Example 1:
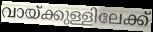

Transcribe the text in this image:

വായ്ക്കുള്ളിലേക്ക്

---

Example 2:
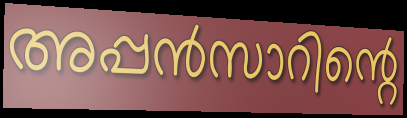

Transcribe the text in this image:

അപ്പൻസാറിന്റെ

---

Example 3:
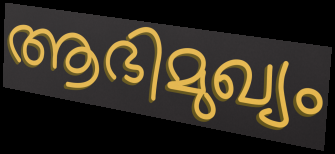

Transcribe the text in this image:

ആഭിമുഖ്യം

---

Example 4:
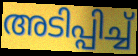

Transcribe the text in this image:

അടിപ്പിച്ച്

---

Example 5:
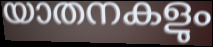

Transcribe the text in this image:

യാതനകളും